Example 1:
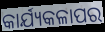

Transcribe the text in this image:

କାର୍ଯ୍ୟକଳାପର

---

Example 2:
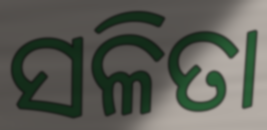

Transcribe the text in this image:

ସଳିତା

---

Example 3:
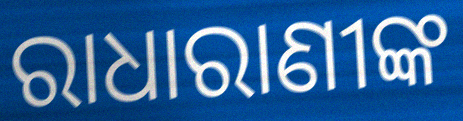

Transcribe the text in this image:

ରାଧାରାଣୀଙ୍କ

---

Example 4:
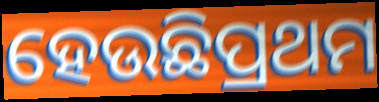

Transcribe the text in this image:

ହେଉଛିପ୍ରଥମ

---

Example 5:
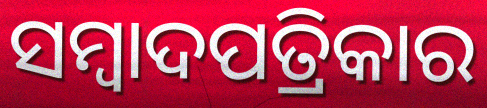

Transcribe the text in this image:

ସମ୍ବାଦପତ୍ରିକାର